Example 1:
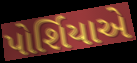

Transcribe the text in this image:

પોર્શિયાએ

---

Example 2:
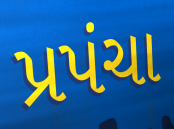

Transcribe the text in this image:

પ્રપંચા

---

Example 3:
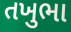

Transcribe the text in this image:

તખુભા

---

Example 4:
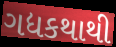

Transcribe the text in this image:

ગદ્યકથાથી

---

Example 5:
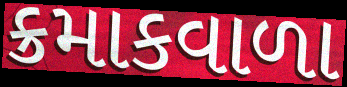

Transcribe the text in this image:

ક્રમાકવાળા